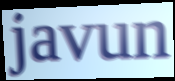
javun